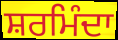
ਸ਼ਰਮਿੰਦਾ